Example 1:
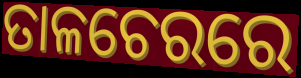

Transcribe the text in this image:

ତାଳଚେରରେ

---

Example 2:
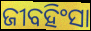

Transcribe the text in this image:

ଜୀବହିଂସା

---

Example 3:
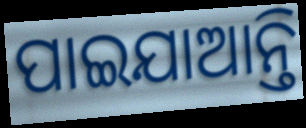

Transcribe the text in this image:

ପାଇଯାଆନ୍ତି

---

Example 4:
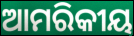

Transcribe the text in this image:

ଆମରିକୀୟ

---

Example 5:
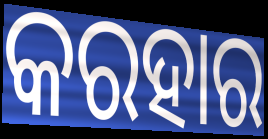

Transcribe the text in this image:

କରହାର